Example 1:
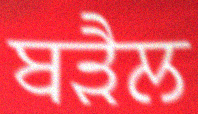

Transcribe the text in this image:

ਬੜੈਲ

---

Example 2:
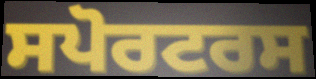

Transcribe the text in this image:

ਸਪੋਰਟਰਸ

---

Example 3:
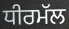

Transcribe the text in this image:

ਧੀਰਮੱਲ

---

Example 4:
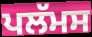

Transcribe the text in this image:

ਪਲੱਮਸ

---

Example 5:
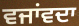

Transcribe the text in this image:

ਵਜਾਂਵਦਾ